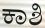
ಕಾಶಿ